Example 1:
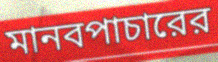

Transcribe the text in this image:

মানবপাচারের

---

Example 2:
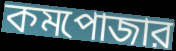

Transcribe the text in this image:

কমপোজার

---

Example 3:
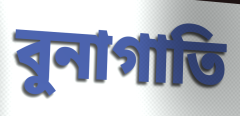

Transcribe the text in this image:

বুনাগাতি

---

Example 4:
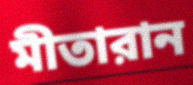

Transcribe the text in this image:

মীতারান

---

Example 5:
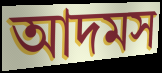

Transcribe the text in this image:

আদমস